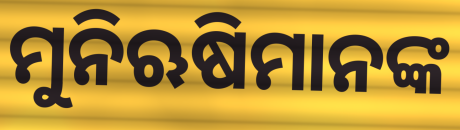
ମୁନିଋଷିମାନଙ୍କ